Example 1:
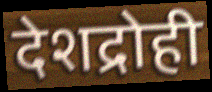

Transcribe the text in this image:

देशद्रोही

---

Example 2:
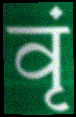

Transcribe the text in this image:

वृं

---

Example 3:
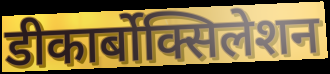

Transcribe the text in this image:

डीकार्बोक्सिलेशन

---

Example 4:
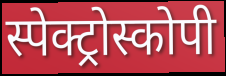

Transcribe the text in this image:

स्पेक्ट्रोस्कोपी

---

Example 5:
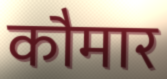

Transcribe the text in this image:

कौमार